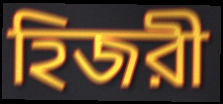
হিজরী